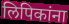
लिपिकांना